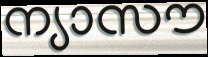
ന്യാസൗ